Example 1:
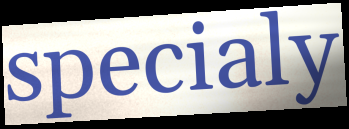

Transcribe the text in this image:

specialy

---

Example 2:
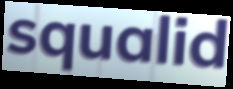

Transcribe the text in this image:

squalid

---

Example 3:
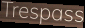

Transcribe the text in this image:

Trespass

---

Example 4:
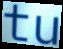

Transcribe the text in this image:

tu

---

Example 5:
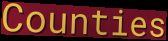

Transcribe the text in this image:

Counties